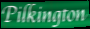
Pilkington